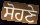
ਸੋਹਣੇ